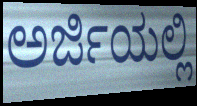
ಅರ್ಜಿಯಲ್ಲಿ